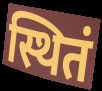
स्थितं